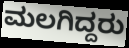
ಮಲಗಿದ್ದರು